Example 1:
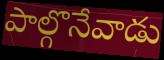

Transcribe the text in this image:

పాల్గొనేవాడు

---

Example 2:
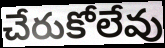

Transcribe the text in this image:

చేరుకోలేవు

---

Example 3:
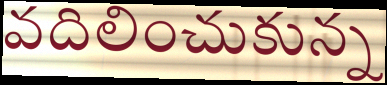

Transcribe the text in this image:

వదిలించుకున్న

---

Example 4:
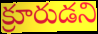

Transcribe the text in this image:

క్రూరుడని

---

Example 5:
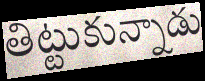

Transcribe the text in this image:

తిట్టుకున్నాడు